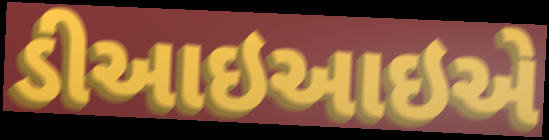
ડીઆઇઆઇએ